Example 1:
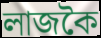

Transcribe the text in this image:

লাজকৈ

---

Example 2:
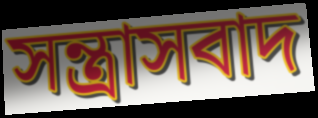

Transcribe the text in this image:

সন্ত্ৰাসবাদ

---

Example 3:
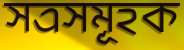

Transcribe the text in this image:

সত্ৰসমূহক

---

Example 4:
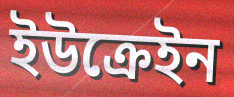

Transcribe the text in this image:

ইউক্ৰেইন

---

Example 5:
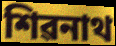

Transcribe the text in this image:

শিৱনাথ